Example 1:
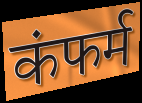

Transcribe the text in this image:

कंफर्म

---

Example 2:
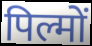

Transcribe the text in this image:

पिल्मों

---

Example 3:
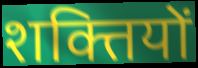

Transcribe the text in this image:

शक्तियों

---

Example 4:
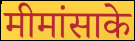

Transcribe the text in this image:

मीमांसाके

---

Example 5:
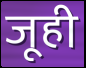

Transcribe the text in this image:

जूही